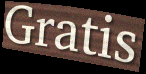
Gratis